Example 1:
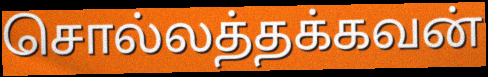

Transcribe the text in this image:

சொல்லத்தக்கவன்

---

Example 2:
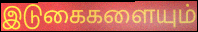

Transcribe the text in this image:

இடுகைகளையும்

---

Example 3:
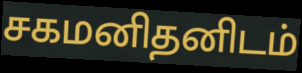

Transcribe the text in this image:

சகமனிதனிடம்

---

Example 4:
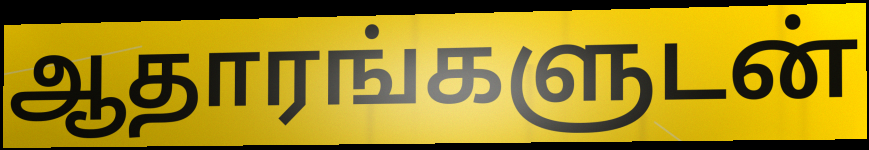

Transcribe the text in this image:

ஆதாரங்களுடன்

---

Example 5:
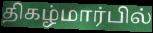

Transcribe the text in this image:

திகழ்மார்பில்